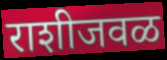
राशीजवळ